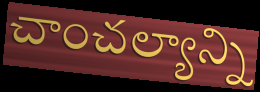
చాంచల్యాన్ని